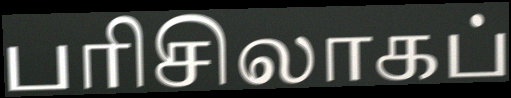
பரிசிலாகப்